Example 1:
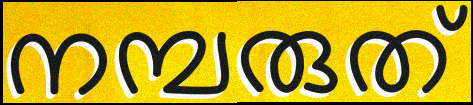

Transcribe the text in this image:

നമ്പരുത്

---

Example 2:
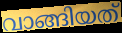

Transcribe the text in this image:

വാങ്ങിയത്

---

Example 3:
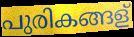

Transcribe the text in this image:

പുരികങ്ങള്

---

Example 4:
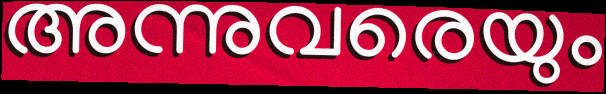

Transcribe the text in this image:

അന്നുവരെയും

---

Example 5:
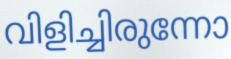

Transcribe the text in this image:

വിളിച്ചിരുന്നോ